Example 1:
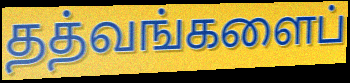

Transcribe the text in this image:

தத்வங்களைப்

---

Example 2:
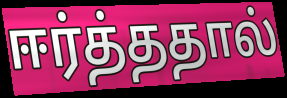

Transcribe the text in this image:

ஈர்த்ததால்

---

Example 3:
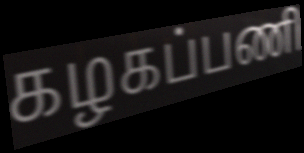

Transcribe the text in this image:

கழகப்பணி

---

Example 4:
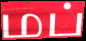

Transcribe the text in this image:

மப்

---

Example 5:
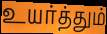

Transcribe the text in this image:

உயர்த்தும்